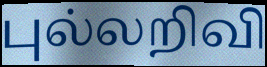
புல்லறிவி